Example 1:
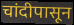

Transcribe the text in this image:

चांदीपासून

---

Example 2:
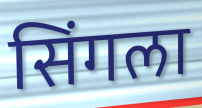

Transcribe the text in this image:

सिंगला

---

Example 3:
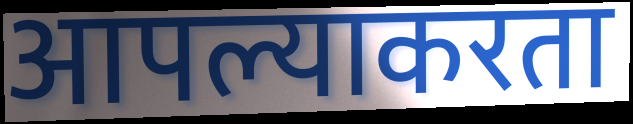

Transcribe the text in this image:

आपल्याकरता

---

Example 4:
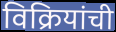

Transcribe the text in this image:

विक्रियांची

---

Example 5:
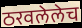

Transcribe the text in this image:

ठरवलेलेच